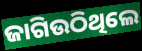
ଜାଗିଉଠିଥିଲେ